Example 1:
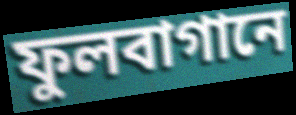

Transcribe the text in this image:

ফুলবাগানে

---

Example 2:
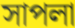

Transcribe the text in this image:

সাপলা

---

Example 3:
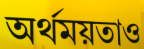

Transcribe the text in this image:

অর্থময়তাও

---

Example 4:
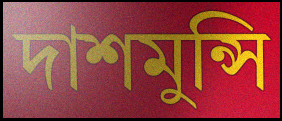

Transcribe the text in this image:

দাশমুন্সি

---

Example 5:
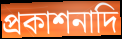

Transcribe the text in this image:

প্রকাশনাদি